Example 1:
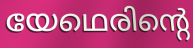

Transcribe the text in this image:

യേഥെരിന്റെ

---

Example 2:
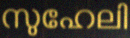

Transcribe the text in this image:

സുഹേലി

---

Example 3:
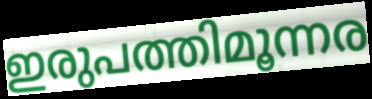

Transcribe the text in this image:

ഇരുപത്തിമൂന്നര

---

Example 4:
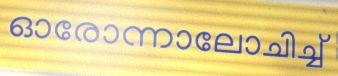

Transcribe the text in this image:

ഓരോന്നാലോചിച്ച്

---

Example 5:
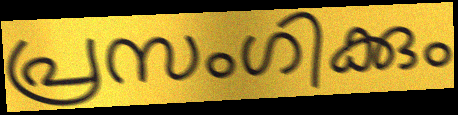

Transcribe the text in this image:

പ്രസംഗിക്കും